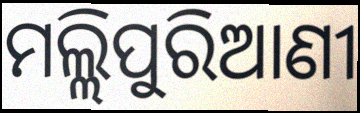
ମଲ୍ଲିପୁରିଆଣୀ